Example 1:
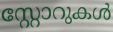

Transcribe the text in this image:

സ്റ്റോറുകൾ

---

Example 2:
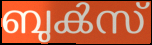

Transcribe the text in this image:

ബുൿസ്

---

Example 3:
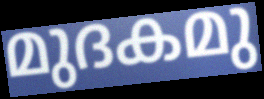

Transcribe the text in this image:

മുദകമു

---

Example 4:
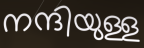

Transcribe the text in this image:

നന്ദിയുള്ള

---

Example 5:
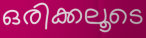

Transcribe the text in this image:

ഒരിക്കലൂടെ